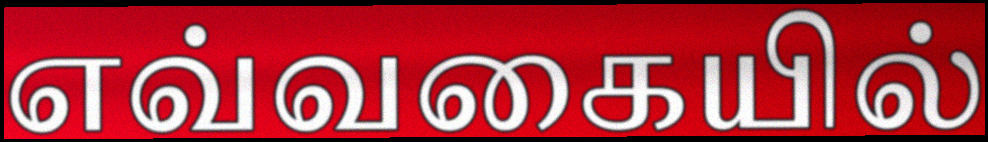
எவ்வகையில்